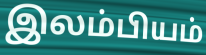
இலம்பியம்